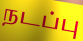
நடப்பு